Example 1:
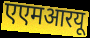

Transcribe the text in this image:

एएमआरयू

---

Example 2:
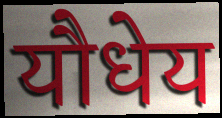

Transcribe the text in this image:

यौधेय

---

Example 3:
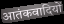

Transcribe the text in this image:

आतंकवादियों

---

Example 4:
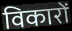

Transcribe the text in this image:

विकारों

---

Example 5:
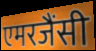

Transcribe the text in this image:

एमरजैंसी